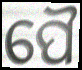
ପୈ